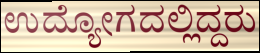
ಉದ್ಯೋಗದಲ್ಲಿದ್ದರು